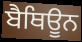
ਬੈਥਿਊਨ